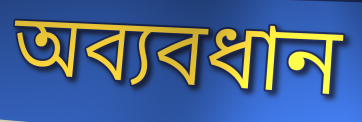
অব্যবধান